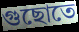
গুছোতে